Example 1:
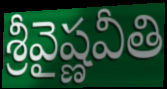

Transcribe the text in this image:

శ్రీవైష్ణవీతి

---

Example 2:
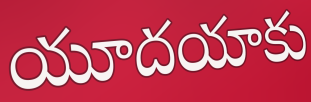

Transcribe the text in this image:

యూదయాకు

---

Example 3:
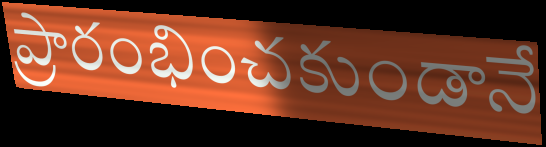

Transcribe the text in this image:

ప్రారంభించకుండానే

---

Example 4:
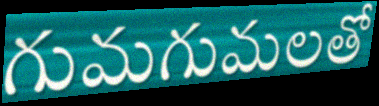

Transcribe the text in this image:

గుమగుమలతో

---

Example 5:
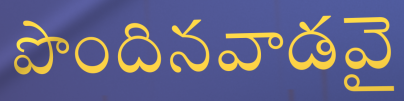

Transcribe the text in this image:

పొందినవాడవై